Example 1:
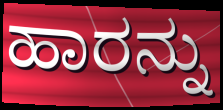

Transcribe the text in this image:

ಹಾರನ್ನು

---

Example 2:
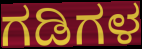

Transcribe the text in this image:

ಗಡಿಗಳ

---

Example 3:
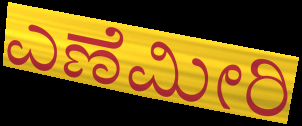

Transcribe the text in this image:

ಎಣೆಮೀರಿ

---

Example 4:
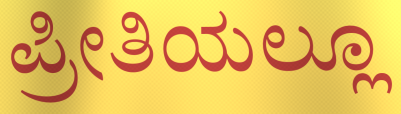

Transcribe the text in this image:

ಪ್ರೀತಿಯಲ್ಲೂ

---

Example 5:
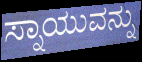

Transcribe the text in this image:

ಸ್ನಾಯುವನ್ನು